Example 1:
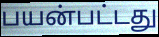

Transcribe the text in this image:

பயன்பட்டது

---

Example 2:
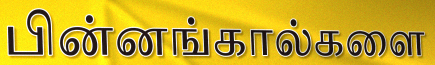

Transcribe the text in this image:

பின்னங்கால்களை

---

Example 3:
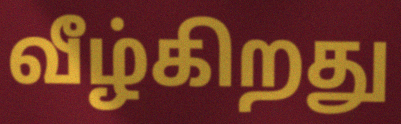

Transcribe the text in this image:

வீழ்கிறது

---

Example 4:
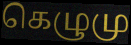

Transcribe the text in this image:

கெழுமு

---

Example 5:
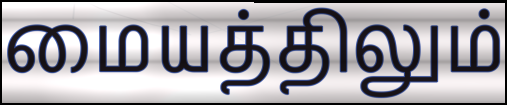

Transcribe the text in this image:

மையத்திலும்